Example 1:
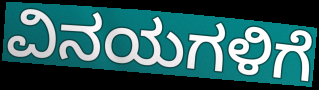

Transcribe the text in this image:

ವಿನಯಗಳಿಗೆ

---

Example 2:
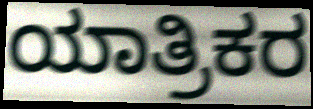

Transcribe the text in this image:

ಯಾತ್ರಿಕರ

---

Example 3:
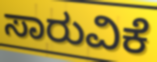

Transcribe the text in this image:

ಸಾರುವಿಕೆ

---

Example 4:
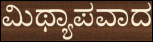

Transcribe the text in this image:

ಮಿಥ್ಯಾಪವಾದ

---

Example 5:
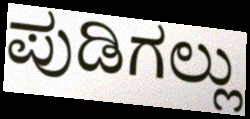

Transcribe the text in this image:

ಪುಡಿಗಲ್ಲು